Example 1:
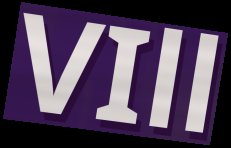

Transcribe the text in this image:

VIll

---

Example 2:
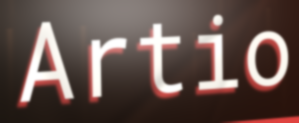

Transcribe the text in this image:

Artio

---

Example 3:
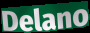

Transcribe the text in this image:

Delano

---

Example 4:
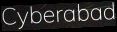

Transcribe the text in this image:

Cyberabad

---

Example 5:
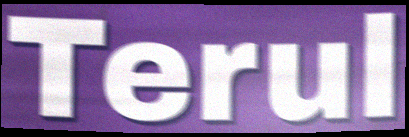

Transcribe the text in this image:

Terul